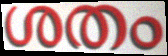
ശതം